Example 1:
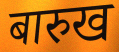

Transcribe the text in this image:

बारुख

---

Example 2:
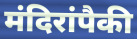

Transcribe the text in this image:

मंदिरांपैकी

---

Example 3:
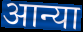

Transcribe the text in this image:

आन्या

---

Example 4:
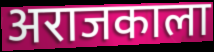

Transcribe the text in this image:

अराजकाला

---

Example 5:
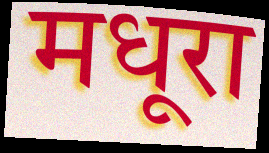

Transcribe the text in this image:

मधूरा